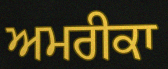
ਅਮਰੀਕਾ